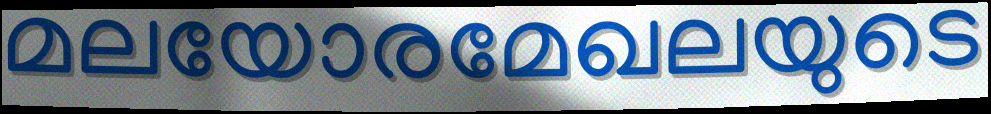
മലയോരമേഖലയുടെ